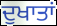
ਦੁਖਾਤਾਂ